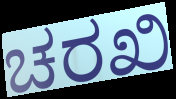
ಚರಖಿ